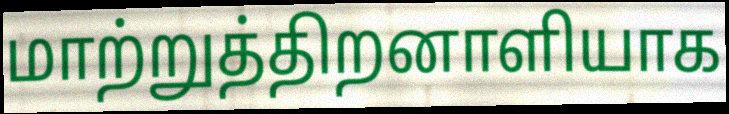
மாற்றுத்திறனாளியாக